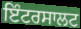
ਇੰਟਰਸਾਲਟ